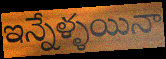
ఇన్నేళ్ళయినా